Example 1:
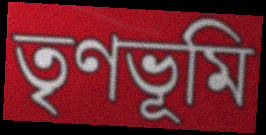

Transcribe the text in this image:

তৃণভূমি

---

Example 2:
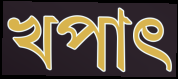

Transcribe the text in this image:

খপাৎ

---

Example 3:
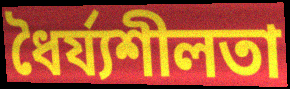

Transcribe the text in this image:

ধৈর্য্যশীলতা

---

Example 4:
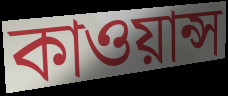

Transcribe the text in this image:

কাওয়ান্স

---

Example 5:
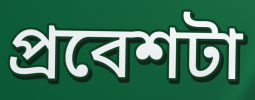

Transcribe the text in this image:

প্রবেশটা